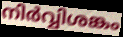
നിർവ്വിശങ്കം